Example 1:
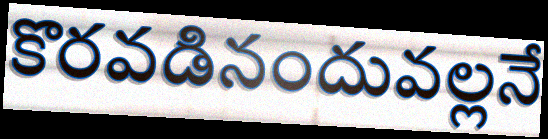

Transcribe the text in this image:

కొరవడినందువల్లనే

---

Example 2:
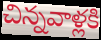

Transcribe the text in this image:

చిన్నవాళ్లకి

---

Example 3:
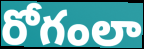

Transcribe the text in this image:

రోగంలా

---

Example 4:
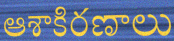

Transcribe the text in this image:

ఆశాకిరణాలు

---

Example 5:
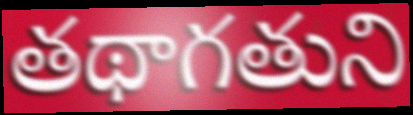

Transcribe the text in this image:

తథాగతుని